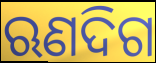
ଋଣଦିଗ